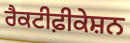
ਰੈਕਟੀਫ਼ੀਕੇਸ਼ਨ